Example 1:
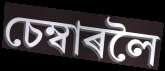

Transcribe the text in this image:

চেম্বাৰলৈ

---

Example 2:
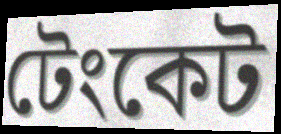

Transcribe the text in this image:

টেংকেট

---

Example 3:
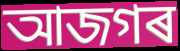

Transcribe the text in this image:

আজগৰ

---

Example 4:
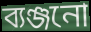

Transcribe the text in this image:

ব্যঞ্জনো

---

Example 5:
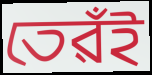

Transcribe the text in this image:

তেৱঁই